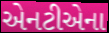
એનટીએના